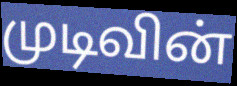
முடிவின்